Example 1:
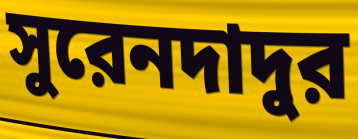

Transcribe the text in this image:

সুরেনদাদুর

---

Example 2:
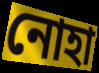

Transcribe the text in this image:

নোহা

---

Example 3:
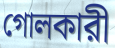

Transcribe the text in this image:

গোলকারী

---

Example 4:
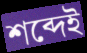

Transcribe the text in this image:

শব্দেই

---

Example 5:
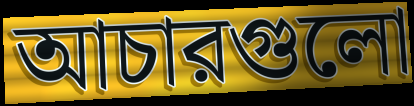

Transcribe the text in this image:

আচারগুলো